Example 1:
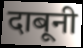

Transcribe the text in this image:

दाबूनी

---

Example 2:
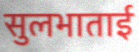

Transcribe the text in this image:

सुलभाताई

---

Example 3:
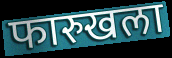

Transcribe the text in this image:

फारुखला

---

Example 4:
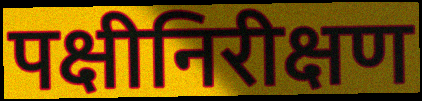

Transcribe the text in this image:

पक्षीनिरीक्षण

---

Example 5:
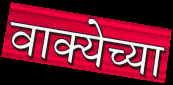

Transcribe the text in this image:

वाक्येच्या